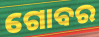
ଗୋବର